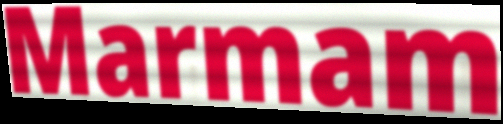
Marmam